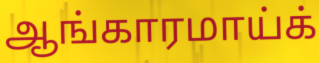
ஆங்காரமாய்க்